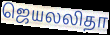
ஜெயலலிதா